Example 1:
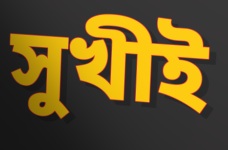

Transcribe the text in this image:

সুখীই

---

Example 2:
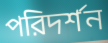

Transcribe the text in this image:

পরিদর্শন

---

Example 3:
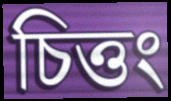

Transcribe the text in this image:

চিত্তং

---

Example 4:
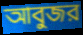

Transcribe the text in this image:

আবুজর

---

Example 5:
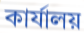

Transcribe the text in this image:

কার্যালয়